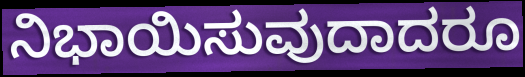
ನಿಭಾಯಿಸುವುದಾದರೂ